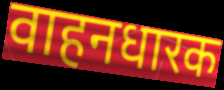
वाहनधारक